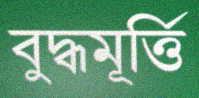
বুদ্ধমূর্ত্তি